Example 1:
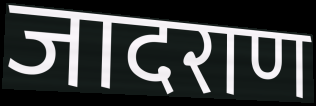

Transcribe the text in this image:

जादराण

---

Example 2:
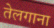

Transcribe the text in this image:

तेलगाना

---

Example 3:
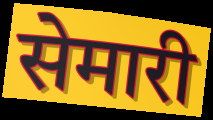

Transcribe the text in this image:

सेमारी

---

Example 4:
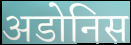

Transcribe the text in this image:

अडोनिस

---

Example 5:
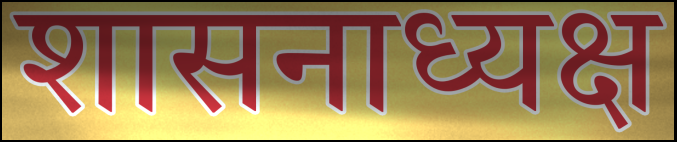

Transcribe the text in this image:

शासनाध्यक्ष